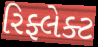
રિફ્લેક્ટ